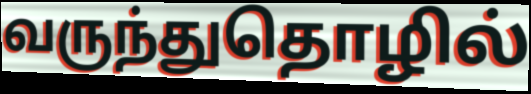
வருந்துதொழில்